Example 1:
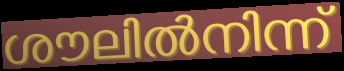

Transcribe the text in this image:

ശൗലിൽനിന്ന്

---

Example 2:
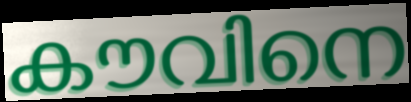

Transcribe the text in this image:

കൗവിനെ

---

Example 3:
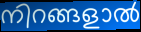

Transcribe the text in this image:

നിറങ്ങളാൽ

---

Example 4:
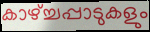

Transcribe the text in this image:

കാഴ്ച്ചപ്പാടുകളും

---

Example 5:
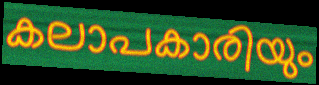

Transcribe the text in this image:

കലാപകാരിയും